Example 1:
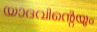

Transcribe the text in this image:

യാദവിന്റെയും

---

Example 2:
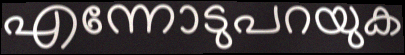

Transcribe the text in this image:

എന്നോടുപറയുക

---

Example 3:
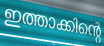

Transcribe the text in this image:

ഇത്താക്കിന്റെ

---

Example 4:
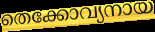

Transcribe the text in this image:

തെക്കോവ്യനായ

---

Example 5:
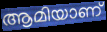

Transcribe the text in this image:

ആമിയാണ്